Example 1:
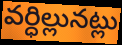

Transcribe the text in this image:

వర్ధిల్లునట్లు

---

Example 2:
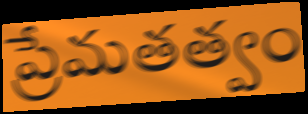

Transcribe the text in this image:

ప్రేమతత్వం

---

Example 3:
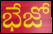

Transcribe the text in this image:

భేజో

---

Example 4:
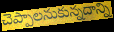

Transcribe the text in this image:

చెప్పాలనుకున్నదాన్ని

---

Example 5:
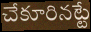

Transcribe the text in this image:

చేకూరినట్టే